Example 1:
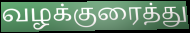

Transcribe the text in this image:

வழக்குரைத்து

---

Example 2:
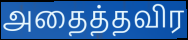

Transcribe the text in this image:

அதைத்தவிர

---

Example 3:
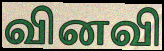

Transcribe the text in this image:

வினவி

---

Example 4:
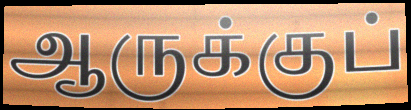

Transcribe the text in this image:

ஆருக்குப்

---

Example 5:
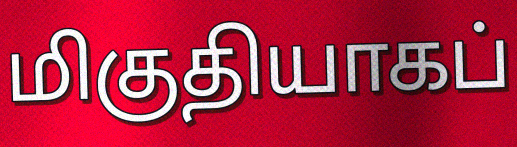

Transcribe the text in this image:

மிகுதியாகப்